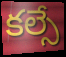
కల్సే